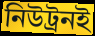
নিউট্রনই